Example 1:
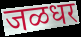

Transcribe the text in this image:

जळधर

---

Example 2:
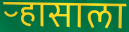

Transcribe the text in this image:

ऱ्हासाला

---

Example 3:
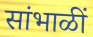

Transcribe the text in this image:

सांभाळीं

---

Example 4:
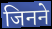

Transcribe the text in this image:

जिनने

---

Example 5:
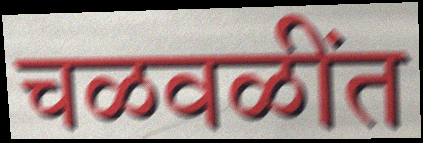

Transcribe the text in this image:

चळवळींत